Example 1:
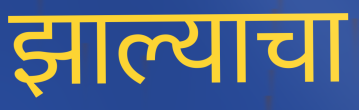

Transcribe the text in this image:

झाल्‍याचा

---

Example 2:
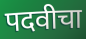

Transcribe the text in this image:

पदवीचा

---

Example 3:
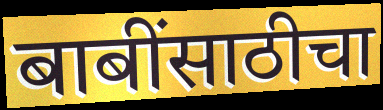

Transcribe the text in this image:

बाबींसाठीचा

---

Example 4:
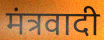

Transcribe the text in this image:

मंत्रवादी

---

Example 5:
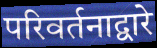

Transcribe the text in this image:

परिवर्तनाद्वारे